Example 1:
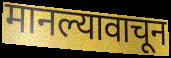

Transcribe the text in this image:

मानल्यावाचून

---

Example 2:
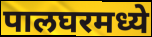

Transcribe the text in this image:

पालघरमध्ये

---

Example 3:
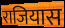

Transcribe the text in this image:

राजियास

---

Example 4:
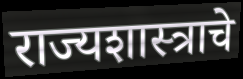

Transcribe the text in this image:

राज्यशास्त्राचे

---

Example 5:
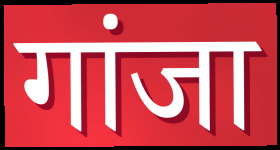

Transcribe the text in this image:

गांजा